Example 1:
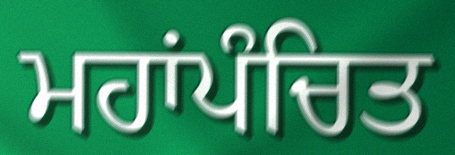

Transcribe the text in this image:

ਮਹਾਂਪੰਚਿਤ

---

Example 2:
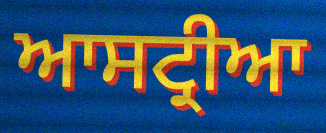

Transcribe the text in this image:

ਆਸਟ੍ਰੀਆ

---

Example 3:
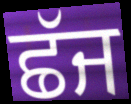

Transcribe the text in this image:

ਛੱਜ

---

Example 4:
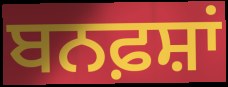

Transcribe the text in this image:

ਬਨਫ਼ਸ਼ਾਂ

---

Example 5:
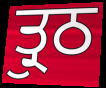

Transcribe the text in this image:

ਤ੍ਰੁਠ